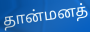
தான்மனத்